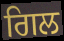
ਗਿਲ